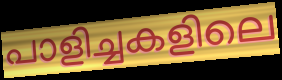
പാളിച്ചകളിലെ